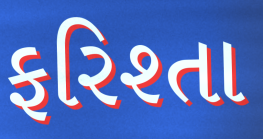
ફરિશ્તા